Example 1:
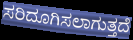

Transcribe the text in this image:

ಸರಿದೂಗಿಸಲಾಗುತ್ತದೆ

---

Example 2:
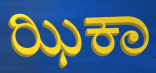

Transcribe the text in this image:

ಝಿಕಾ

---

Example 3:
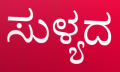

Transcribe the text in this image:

ಸುಳ್ಯದ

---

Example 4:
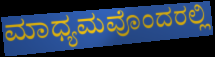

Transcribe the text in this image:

ಮಾಧ್ಯಮವೊಂದರಲ್ಲಿ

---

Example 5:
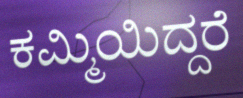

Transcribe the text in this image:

ಕಮ್ಮಿಯಿದ್ದರೆ